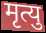
मृत्यु